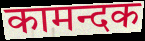
कामन्दक